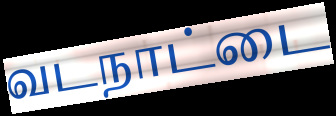
வடநாட்டை